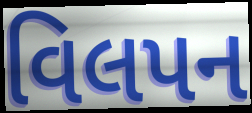
વિલપન